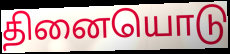
தினையொடு